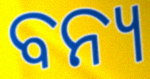
ବନ୍ୟ